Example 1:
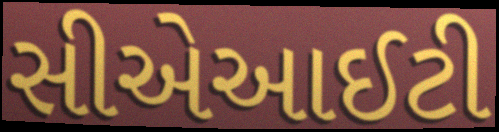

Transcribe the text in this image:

સીએઆઈટી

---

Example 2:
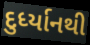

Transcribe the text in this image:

દુર્ધ્યાનથી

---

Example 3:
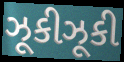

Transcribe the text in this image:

ઝૂકીઝૂકી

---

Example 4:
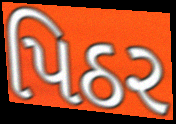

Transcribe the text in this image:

પિઠર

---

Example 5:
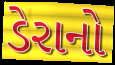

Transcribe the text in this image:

ડેરાનો